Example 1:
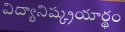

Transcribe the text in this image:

విద్యానిష్క్రయార్థం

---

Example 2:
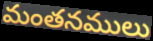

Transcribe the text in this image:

మంతనములు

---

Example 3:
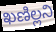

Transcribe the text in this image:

ఖణిల్లని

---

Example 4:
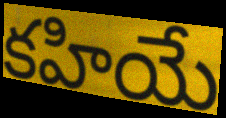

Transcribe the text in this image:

కహియే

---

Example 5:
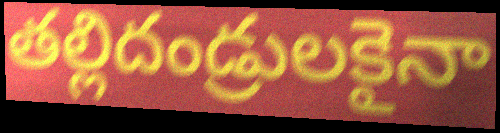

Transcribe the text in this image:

తల్లిదండ్రులకైనా